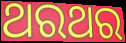
ଥରଥର